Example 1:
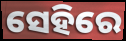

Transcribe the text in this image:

ସେହିରେ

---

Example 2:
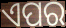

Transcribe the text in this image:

ଏପର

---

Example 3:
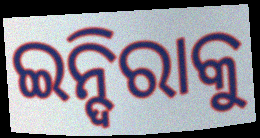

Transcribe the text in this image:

ଇନ୍ଦିରାକୁ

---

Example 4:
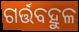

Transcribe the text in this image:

ଗର୍ତ୍ତବହୁଳ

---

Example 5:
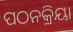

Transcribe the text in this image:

ପଠନକ୍ରିୟା